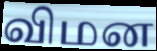
விமன